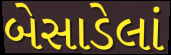
બેસાડેલાં